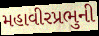
મહાવીરપ્રભુની